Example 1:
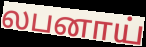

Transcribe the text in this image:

லபனாய்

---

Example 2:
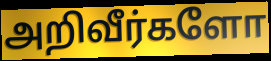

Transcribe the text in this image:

அறிவீர்களோ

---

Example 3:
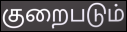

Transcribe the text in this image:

குறைபடும்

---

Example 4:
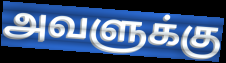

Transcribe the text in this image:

அவளுக்கு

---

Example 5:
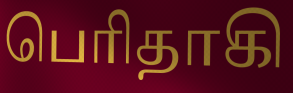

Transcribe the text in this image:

பெரிதாகி